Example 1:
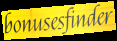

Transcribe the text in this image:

bonusesfinder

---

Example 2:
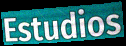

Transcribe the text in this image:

Estudios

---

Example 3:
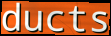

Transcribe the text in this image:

ducts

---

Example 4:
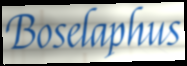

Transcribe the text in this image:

Boselaphus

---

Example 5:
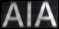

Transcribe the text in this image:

AIA